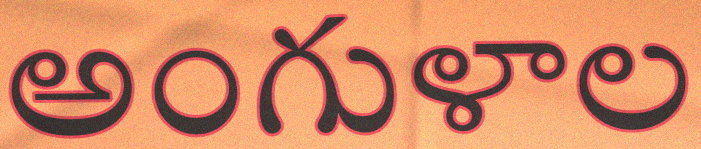
అంగుళాల